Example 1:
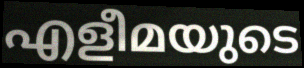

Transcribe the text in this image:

എളീമയുടെ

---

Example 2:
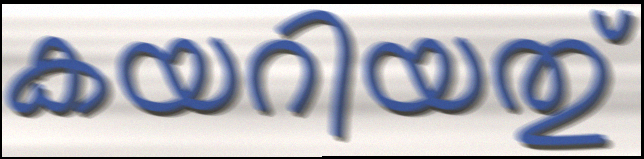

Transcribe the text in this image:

കയറിയതു്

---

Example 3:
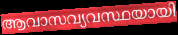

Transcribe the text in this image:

ആവാസവ്യവസ്ഥയായി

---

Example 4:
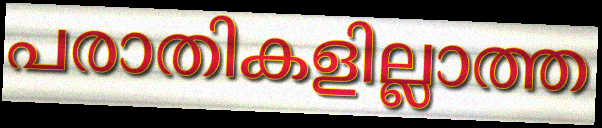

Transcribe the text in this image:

പരാതികളില്ലാത്ത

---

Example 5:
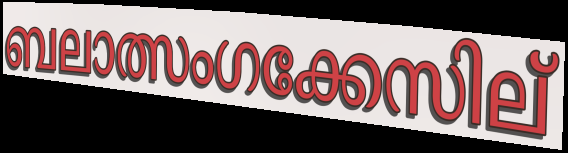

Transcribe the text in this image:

ബലാത്സംഗക്കേസില്